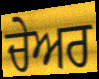
ਚੇਅਰ